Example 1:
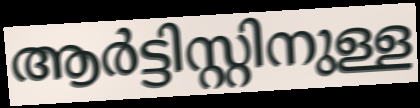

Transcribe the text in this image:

ആർട്ടിസ്റ്റിനുള്ള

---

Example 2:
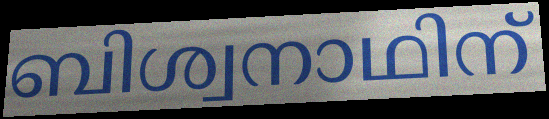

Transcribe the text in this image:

ബിശ്വനാഥിന്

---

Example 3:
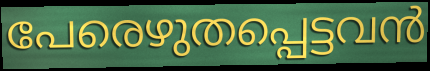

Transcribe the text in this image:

പേരെഴുതപ്പെട്ടവൻ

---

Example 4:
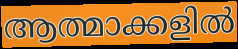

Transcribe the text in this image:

ആത്മാക്കളിൽ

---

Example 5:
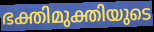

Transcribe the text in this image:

ഭക്തിമുക്തിയുടെ